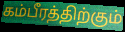
கம்பீரத்திற்கும்